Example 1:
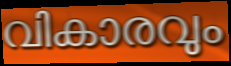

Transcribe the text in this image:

വികാരവും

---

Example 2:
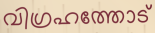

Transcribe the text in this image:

വിഗ്രഹത്തോട്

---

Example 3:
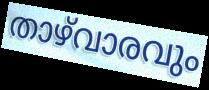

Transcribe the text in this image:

താഴ്‌വാരവും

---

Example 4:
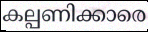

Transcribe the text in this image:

കല്പണിക്കാരെ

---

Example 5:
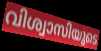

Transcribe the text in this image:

വിശ്വാസിയുടെ